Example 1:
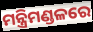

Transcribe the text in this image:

ମନ୍ତ୍ରିମଣ୍ଡଳରେ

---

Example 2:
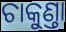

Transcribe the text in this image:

ଚାକୁଣ୍ତା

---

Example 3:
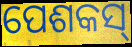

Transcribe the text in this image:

ପେଶକସ୍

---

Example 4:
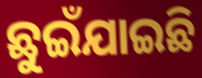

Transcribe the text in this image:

ଛୁଇଁଯାଇଛି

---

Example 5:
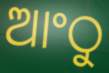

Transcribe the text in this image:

ଆଂଠୁ